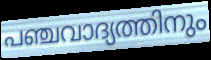
പഞ്ചവാദ്യത്തിനും